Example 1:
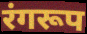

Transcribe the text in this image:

रंगरूप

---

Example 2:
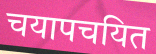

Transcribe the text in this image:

चयापचयित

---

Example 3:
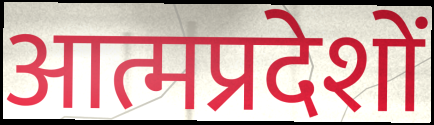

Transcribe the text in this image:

आत्मप्रदेशों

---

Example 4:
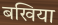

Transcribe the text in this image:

बखिया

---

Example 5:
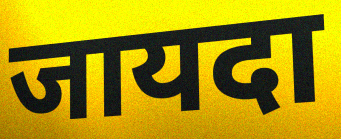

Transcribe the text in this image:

जायदा